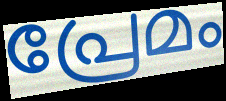
പ്രേമം